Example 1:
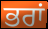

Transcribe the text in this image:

ਭਰਾਂ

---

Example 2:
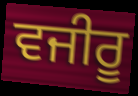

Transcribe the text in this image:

ਵਜੀਰੂ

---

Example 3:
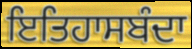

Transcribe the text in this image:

ਇਤਿਹਾਸਬੰਦਾ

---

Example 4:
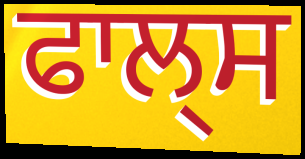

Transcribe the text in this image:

ਫਾਲ੍ਸ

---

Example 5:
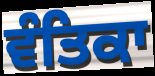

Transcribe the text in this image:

ਵੰਤਿਕਾ